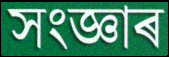
সংজ্ঞাৰ